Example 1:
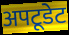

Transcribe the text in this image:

अपटूडेट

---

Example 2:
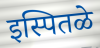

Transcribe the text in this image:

इस्पितळे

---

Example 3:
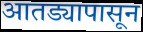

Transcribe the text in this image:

आतड्यापासून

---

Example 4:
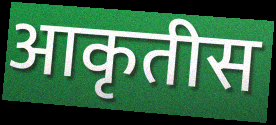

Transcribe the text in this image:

आकृतीस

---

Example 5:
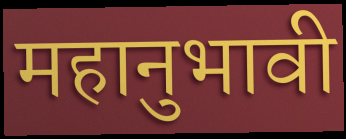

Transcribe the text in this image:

महानुभावी